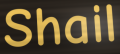
Shail